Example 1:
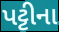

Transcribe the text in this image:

પટ્ટીના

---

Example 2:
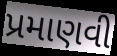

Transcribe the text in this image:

પ્રમાણવી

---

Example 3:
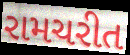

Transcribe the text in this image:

રામચરીત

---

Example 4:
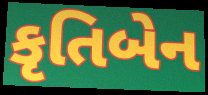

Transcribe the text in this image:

કૃતિબેન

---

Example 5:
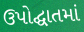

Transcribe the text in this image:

ઉપોદ્ઘાતમાં